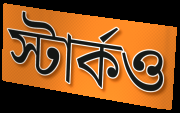
স্টার্কও